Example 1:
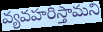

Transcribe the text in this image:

వ్యవహరిస్తామని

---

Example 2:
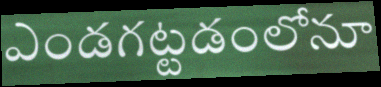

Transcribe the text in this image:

ఎండగట్టడంలోనూ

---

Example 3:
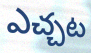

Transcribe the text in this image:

ఎచ్చట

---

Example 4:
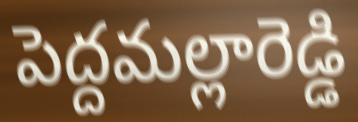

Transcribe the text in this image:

పెద్దమల్లారెడ్డి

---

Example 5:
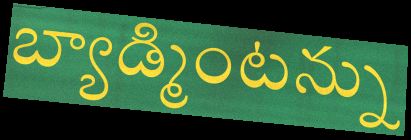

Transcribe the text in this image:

బ్యాడ్మింటన్ను